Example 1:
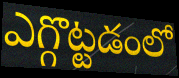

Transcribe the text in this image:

ఎగ్గొట్టడంలో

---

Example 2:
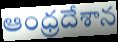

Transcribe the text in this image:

ఆంధ్రదేశాన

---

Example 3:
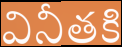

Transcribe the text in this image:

వినీతకి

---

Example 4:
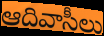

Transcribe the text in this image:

ఆదివాసీలు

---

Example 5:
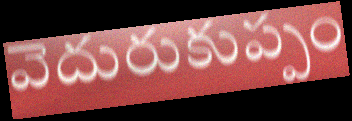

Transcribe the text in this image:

వెదురుకుప్పం